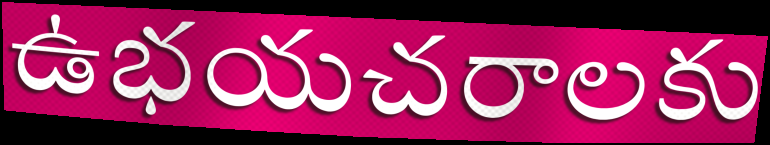
ఉభయచరాలకు